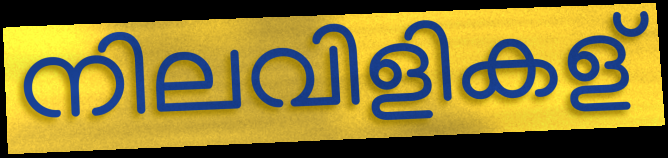
നിലവിളികള്